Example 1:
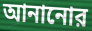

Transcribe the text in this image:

আনানোর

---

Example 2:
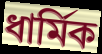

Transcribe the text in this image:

ধার্মিক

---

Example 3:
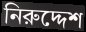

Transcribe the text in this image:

নিরুদ্দেশ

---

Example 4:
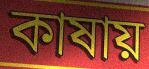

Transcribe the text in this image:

কাষায়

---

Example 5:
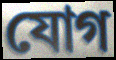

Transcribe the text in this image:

যোগ